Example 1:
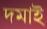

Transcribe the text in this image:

দমাই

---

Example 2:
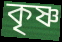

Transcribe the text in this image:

কৃষ্ণ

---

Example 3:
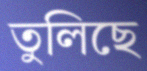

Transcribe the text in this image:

তুলিছে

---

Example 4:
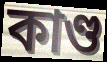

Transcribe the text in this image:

কাণ্ড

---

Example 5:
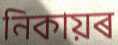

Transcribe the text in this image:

নিকায়ৰ